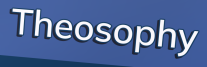
Theosophy